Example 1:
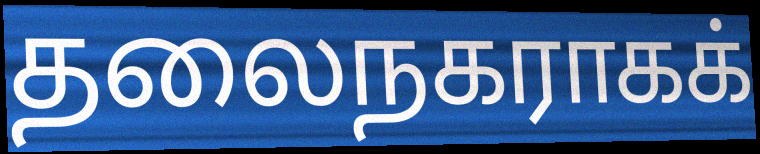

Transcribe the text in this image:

தலைநகராகக்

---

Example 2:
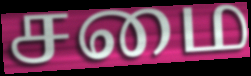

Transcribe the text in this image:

சமை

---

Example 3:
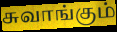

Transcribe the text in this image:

சுவாங்கும்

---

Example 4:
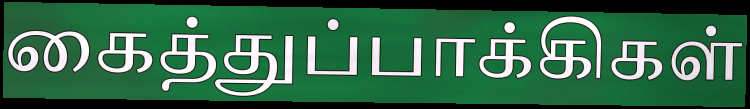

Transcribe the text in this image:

கைத்துப்பாக்கிகள்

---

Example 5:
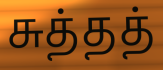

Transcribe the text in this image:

சுத்தத்